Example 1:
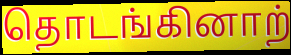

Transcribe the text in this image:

தொடங்கினாற்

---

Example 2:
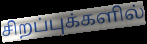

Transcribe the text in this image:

சிறப்புக்களில்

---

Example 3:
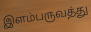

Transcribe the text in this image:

இளம்பருவத்து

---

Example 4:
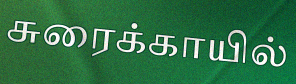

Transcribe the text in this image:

சுரைக்காயில்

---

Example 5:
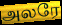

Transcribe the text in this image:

அலரே